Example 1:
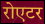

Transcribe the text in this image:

रोएटर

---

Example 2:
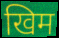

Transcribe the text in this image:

खिम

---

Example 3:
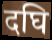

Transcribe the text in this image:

दघि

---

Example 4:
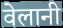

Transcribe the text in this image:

वेलानी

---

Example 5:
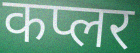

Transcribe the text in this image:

कप्लर